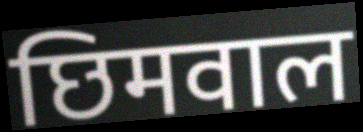
छिमवाल